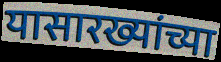
यासारख्यांच्या